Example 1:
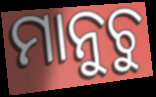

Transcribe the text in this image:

ମାନୁଚୁ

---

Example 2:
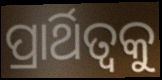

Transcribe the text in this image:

ପ୍ରାର୍ଥିତ୍ୱକୁ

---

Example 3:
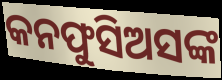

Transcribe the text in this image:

କନଫୁସିଅସଙ୍କ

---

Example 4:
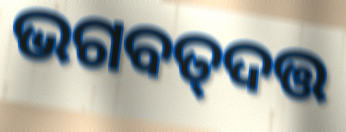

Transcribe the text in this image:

ଭଗବତ୍‌ଦତ୍ତ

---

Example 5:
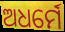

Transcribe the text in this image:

ଅଧର୍ମେ